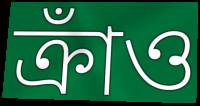
ক্রাঁও